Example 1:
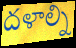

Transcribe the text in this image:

దళాల్ని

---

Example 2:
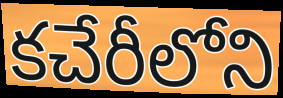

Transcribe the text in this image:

కచేరీలోని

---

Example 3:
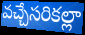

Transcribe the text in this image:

వచ్చేసరికల్లా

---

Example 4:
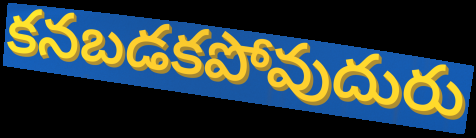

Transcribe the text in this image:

కనబడకపోవుదురు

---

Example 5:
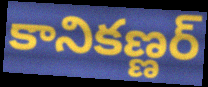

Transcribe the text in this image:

కానికణ్ణర్